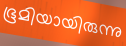
ഭൂമിയായിരുന്നു